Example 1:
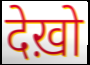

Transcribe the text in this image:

देख़ो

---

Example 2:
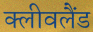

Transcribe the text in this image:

क्‍लीवलैंड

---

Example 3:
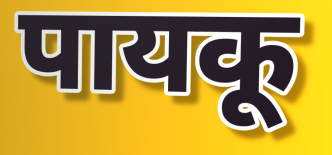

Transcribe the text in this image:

पायकू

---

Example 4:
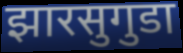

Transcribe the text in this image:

झारसुगुडा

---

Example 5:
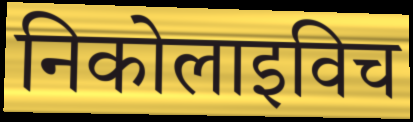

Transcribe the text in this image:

निकोलाइविच